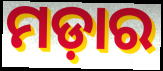
ମଡ଼ାର